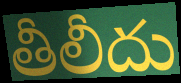
తీలీదు